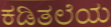
ಕಡಿತಲೆಯ